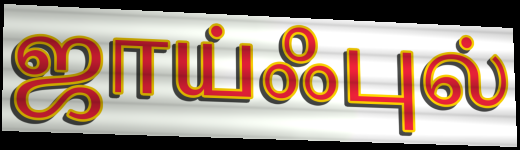
ஜாய்ஃபுல்